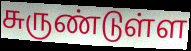
சுருண்டுள்ள